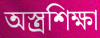
অস্ত্রশিক্ষা